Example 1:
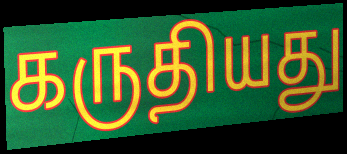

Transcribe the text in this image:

கருதியது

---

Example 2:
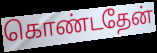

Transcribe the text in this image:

கொண்டதேன்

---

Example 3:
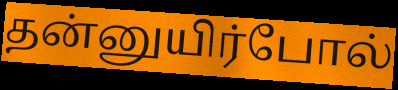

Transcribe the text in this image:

தன்னுயிர்போல்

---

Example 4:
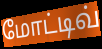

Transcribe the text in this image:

மோட்டிவ்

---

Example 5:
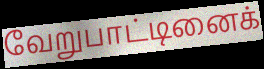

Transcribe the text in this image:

வேறுபாட்டினைக்